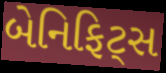
બેનિફિટ્સ